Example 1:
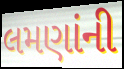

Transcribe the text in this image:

લમણાંની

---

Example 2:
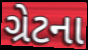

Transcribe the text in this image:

ગ્રેટના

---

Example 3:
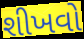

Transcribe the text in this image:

શીખવો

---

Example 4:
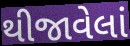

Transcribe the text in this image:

થીજાવેલાં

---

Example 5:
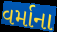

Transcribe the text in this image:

વર્માના